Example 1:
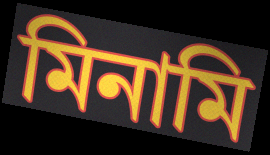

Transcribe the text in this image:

মিনামি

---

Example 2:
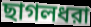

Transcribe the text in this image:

ছাগলধরা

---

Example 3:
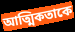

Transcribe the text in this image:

আত্মিকতাকে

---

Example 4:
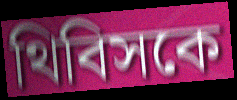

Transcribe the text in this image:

থিবিসকে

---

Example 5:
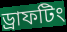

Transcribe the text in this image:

ড্রাফটিং